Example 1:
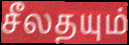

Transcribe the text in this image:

சீலதயும்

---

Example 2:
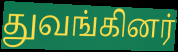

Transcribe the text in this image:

துவங்கினர்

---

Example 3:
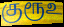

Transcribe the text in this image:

குரூஉ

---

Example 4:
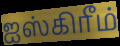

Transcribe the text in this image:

ஐஸ்கிரீம்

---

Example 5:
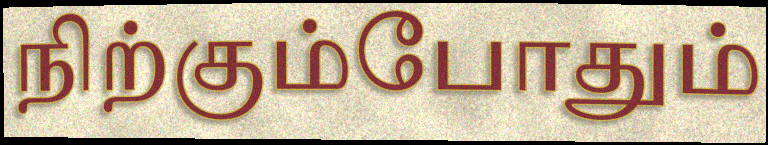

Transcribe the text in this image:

நிற்கும்போதும்